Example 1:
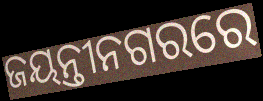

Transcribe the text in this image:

ଜୟନ୍ତୀନଗରରେ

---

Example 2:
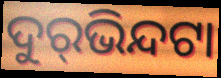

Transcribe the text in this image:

ଦୁର୍‌ଭିନ୍ଦଟା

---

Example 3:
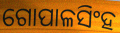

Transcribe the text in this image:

ଗୋପାଳସିଂହ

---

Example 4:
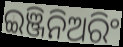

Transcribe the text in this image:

ଇଞ୍ଜିନିଅରିଂ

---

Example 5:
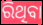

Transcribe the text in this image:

ରିଥିବା